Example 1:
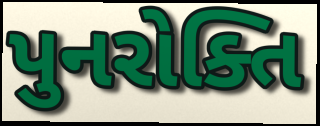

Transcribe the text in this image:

પુનરોક્તિ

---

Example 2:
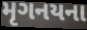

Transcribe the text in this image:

મૃગનયના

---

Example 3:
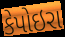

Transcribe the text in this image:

કેપોઇરા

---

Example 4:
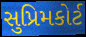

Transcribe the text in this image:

સુપ્રિમકોર્ટ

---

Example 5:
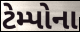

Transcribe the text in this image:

ટેમ્પોના